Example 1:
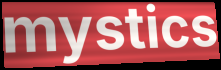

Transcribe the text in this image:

mystics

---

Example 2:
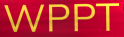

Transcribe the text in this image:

WPPT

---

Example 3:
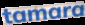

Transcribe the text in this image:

tamara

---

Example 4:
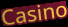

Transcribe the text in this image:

Casino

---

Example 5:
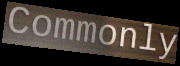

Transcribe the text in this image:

Commonly